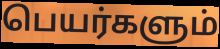
பெயர்களும்